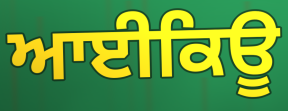
ਆਈਕਿਊ